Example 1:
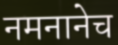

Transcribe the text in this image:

नमनानेच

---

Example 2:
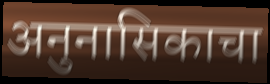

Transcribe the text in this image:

अनुनासिकाचा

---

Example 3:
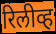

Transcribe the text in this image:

रिलीव्ह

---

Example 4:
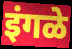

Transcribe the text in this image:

इंगळे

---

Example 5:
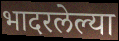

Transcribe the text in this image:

भादरलेल्या